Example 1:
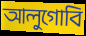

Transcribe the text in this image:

আলুগোবি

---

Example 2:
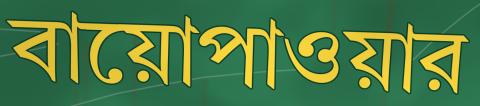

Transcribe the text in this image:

বায়োপাওয়ার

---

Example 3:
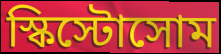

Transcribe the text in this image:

স্কিস্টোসোম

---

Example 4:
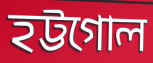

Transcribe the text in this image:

হট্টগোল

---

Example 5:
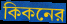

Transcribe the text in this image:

কিকনের